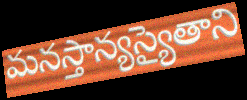
మనస్తాన్యస్యైతాని